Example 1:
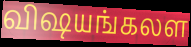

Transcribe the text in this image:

விஷயங்கலள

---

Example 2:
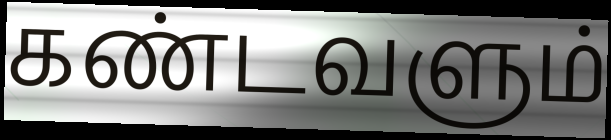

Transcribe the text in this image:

கண்டவளும்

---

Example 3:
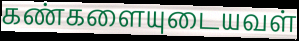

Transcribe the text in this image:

கண்களையுடையவள்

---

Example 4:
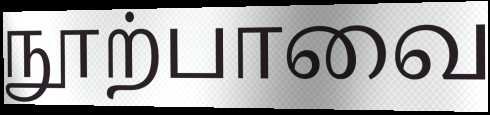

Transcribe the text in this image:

நூற்பாவை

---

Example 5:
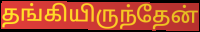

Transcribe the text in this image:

தங்கியிருந்தேன்